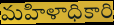
మహిళాధికారి